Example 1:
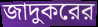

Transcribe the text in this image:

জাদুকরের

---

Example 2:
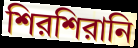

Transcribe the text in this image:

শিরশিরানি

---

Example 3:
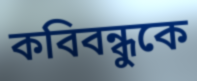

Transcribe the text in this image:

কবিবন্ধুকে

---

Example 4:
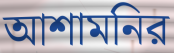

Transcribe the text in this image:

আশামনির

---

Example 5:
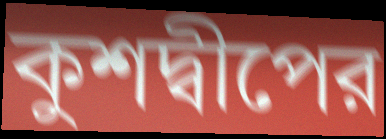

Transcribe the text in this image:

কুশদ্বীপের